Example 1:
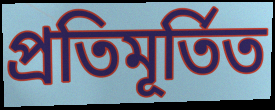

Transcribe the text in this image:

প্ৰতিমূৰ্তিত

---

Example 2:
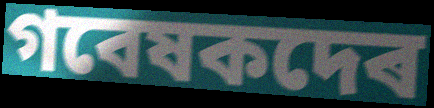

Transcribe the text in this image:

গবেষকদেৰ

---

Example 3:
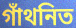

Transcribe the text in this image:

গাঁথনিত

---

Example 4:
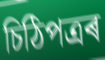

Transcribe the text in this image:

চিঠিপত্ৰৰ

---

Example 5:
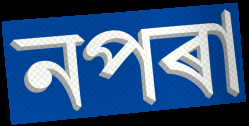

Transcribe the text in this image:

নপৰা